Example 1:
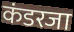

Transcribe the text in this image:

कंडरजा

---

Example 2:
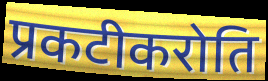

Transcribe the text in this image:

प्रकटीकरोति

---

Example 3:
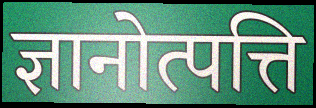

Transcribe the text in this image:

ज्ञानोत्पत्ति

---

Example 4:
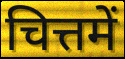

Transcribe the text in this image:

चित्तमें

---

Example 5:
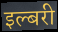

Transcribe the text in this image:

इल्बरी